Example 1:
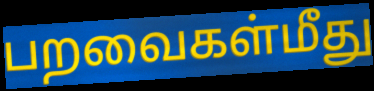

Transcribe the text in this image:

பறவைகள்மீது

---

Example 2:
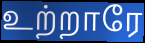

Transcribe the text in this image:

உற்றாரே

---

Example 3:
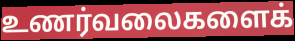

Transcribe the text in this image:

உணர்வலைகளைக்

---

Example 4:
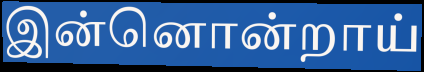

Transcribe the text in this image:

இன்னொன்றாய்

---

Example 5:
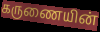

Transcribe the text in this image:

கருணையின்